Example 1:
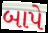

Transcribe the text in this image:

બાપે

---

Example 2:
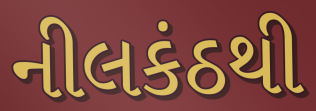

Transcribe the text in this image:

નીલકંઠથી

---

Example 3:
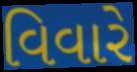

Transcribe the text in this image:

વિવારે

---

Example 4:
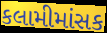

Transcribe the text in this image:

કલામીમાંસક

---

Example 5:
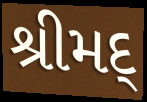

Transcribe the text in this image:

શ્રીમદ્‍